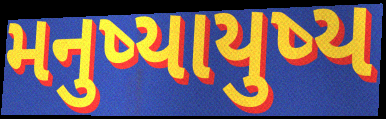
મનુષ્યાયુષ્ય